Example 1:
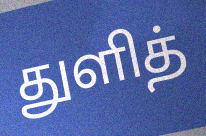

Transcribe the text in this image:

துளித்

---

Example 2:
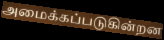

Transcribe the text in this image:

அமைக்கப்படுகின்றன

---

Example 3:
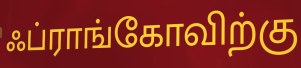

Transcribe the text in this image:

ஃப்ராங்கோவிற்கு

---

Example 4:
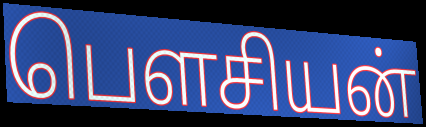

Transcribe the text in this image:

பௌசியன்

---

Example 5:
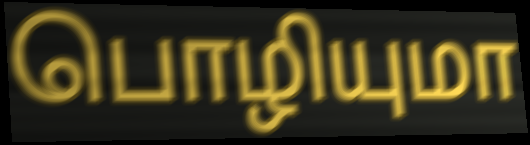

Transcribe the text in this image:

பொழியுமா